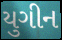
યુગીન